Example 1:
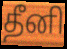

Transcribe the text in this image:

தீனி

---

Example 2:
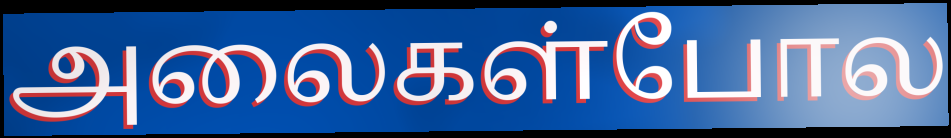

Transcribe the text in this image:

அலைகள்போல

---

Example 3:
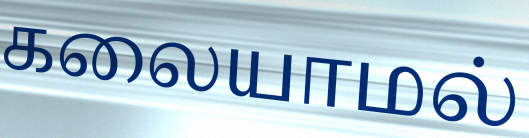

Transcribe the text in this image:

கலையாமல்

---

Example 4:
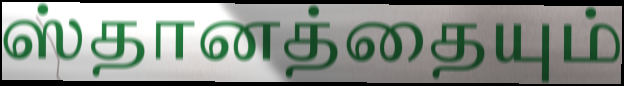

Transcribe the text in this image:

ஸ்தானத்தையும்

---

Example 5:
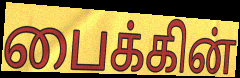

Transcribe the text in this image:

பைக்கின்